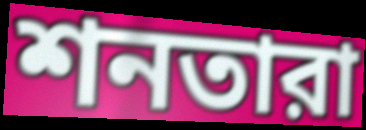
শনতারা